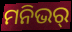
ମନିଭର୍